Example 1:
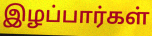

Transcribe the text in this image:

இழப்பார்கள்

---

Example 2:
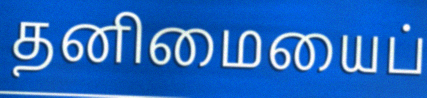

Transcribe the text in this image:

தனிமையைப்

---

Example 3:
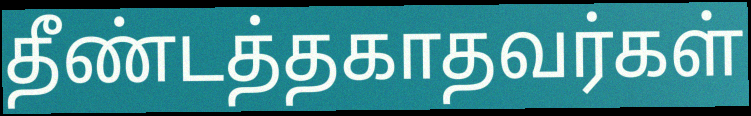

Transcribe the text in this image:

தீண்டத்தகாதவர்கள்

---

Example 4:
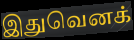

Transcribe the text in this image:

இதுவெனக்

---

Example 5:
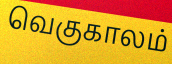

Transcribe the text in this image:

வெகுகாலம்